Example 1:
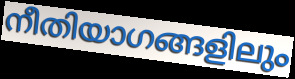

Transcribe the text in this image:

നീതിയാഗങ്ങളിലും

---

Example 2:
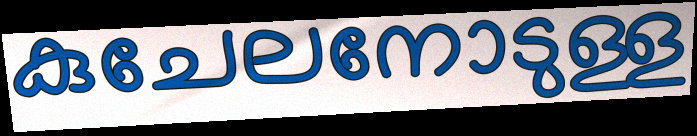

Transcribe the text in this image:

കുചേലനോടുള്ള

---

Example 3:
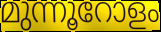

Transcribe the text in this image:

മുന്നൂറോളം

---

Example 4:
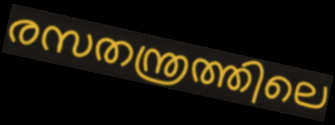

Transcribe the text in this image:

രസതന്ത്രത്തിലെ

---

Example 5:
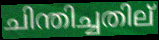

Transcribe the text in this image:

ചിന്തിച്ചതില്